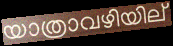
യാത്രാവഴിയില്